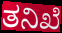
ತನಿಖೆ